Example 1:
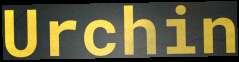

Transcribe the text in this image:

Urchin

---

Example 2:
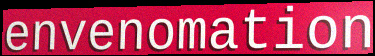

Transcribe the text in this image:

envenomation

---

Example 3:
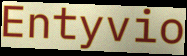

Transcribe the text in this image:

Entyvio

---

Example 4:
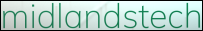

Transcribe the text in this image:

midlandstech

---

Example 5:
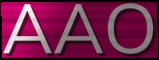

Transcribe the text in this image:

AAO